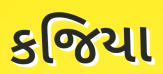
કજિયા